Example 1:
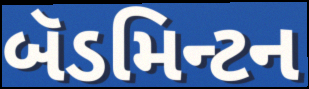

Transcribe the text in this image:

બૅડમિન્ટન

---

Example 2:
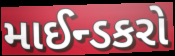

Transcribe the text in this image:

માઈન્ડકરો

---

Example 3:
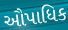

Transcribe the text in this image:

ઔપાધિક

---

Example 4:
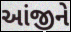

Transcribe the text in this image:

આંજીને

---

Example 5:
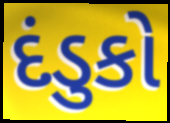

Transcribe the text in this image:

દંડુકો